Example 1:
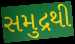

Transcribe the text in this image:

સમુદ્રથી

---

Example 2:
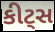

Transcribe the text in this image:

કીટ્સ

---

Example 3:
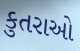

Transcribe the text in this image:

કુતરાઓ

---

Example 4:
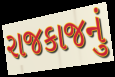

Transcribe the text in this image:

રાજકાજનું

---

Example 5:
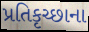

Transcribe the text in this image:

પ્રતિકૃચ્છાના